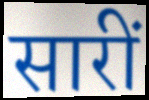
सारीं